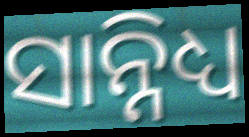
ସାନ୍ନିଧ୍ୟ